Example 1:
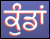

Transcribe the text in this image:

ਕੁੰਡਾਂ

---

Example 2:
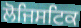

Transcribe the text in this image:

ਲੋਜਿਸਟਿਕ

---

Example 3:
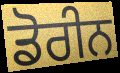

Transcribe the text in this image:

ਡੋਰੀਨ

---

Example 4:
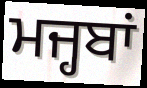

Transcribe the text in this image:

ਮਜ੍ਹਬਾਂ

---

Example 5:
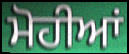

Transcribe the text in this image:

ਮੋਹੀਆਂ